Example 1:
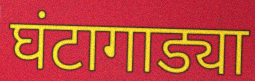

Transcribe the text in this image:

घंटागाड्या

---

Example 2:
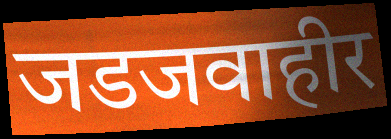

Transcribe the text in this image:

जडजवाहीर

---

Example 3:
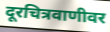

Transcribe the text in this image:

दूरचित्रवाणीवर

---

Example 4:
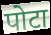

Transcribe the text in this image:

पोटा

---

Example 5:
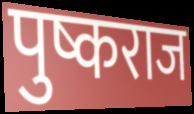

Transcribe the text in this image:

पुष्कराज